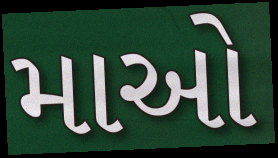
માઓ